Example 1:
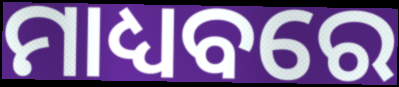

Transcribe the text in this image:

ମାଧ୍ୟବରେ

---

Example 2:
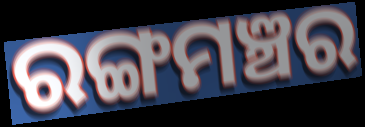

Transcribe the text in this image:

ରଙ୍ଗମଞ୍ଚର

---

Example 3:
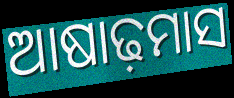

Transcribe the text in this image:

ଆଷାଢ଼ମାସ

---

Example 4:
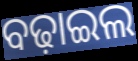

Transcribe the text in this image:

ବଢ଼ାଇଲ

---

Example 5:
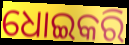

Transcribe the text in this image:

ଧୋଇକରି